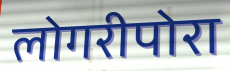
लोगरीपोरा